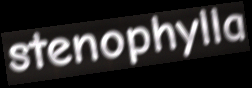
stenophylla